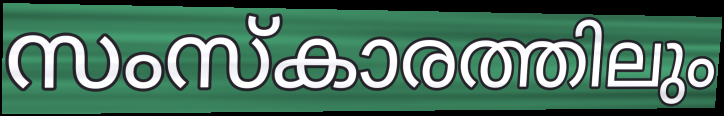
സംസ്കാരത്തിലും